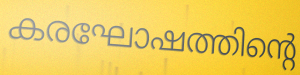
കരഘോഷത്തിന്റെ